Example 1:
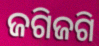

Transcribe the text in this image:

ଜଗିଜଗି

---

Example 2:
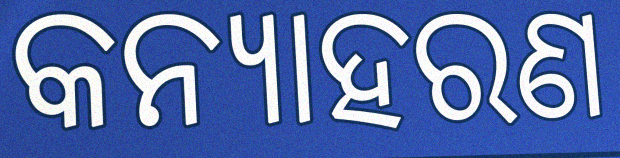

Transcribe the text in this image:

କନ୍ୟାହରଣ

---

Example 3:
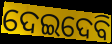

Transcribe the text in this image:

ଦେଇଦେବି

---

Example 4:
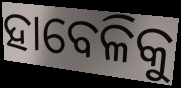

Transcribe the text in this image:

ହାବେଳିକୁ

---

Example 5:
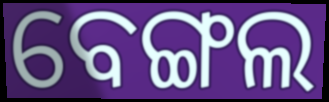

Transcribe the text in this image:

ବେଙ୍ଗଲ